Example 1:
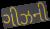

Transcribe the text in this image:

ગીઝની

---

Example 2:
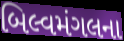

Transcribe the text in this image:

બિલ્વમંગલના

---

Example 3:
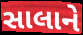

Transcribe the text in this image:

સાલાને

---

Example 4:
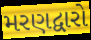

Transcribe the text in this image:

મરણદ્વારો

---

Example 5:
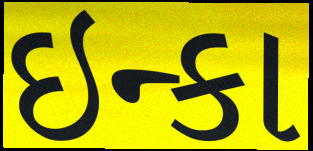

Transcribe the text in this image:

ઇન્કા